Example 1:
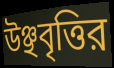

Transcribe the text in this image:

উঞ্ছবৃত্তির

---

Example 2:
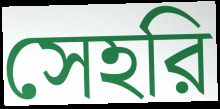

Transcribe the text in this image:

সেহরি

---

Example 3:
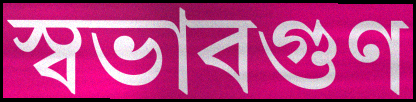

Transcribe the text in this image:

স্বভাবগুণ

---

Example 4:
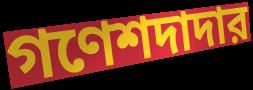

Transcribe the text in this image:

গণেশদাদার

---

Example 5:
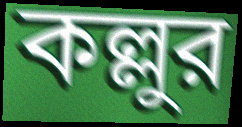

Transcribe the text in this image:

কল্লুর